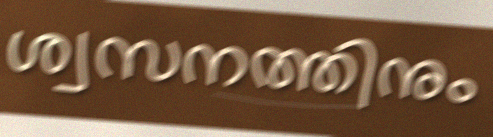
ശ്വസനത്തിനും